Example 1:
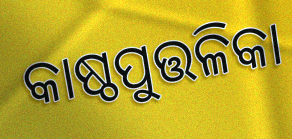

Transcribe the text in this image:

କାଷ୍ଠପୁତ୍ତଳିକା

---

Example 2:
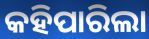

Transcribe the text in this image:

କହିପାରିଲା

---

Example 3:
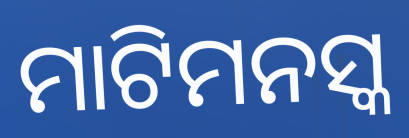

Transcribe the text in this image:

ମାଟିମନସ୍କ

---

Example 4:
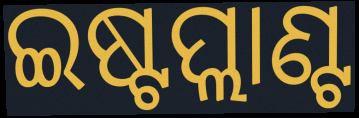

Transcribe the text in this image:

ଇଷ୍ଟପ୍ଲାଣ୍ଟ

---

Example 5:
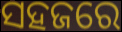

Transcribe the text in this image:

ସହଜରେ